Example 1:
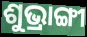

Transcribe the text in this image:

ଶୁଭ୍ରାଙ୍ଗୀ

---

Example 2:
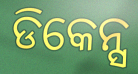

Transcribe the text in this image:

ଡିକେନ୍ସ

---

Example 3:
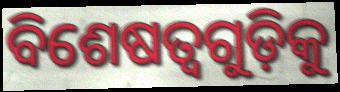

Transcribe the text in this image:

ବିଶେଷତ୍ୱଗୁଡ଼ିକୁ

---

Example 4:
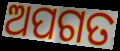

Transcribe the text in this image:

ଅପଗତ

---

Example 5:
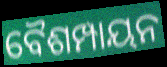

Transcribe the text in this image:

ବୈଶମ୍ପାୟନ